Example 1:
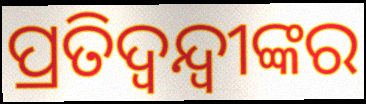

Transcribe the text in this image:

ପ୍ରତିଦ୍ୱନ୍ଦ୍ୱୀଙ୍କର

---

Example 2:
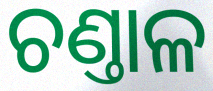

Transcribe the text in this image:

ଚଣ୍ତାଳ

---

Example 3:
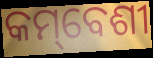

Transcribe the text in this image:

କମ୍‌ବେଶୀ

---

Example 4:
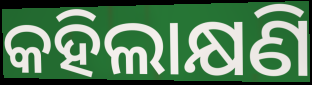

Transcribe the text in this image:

କହିଲାକ୍ଷଣି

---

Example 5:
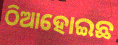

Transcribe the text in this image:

ଠିଆହୋଇଛ